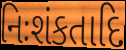
નિઃશંકતાદિ